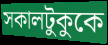
সকালটুকুকে